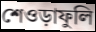
শেওড়াফুলি